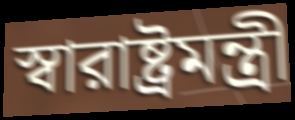
স্বারাষ্ট্রমন্ত্রী